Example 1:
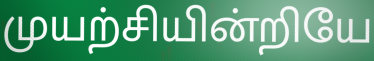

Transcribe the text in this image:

முயற்சியின்றியே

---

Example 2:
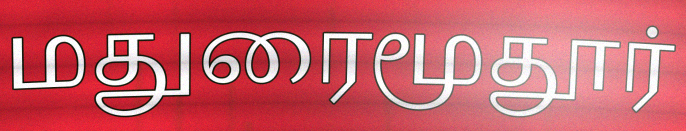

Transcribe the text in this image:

மதுரைமூதூர்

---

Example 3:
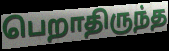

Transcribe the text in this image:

பெறாதிருந்த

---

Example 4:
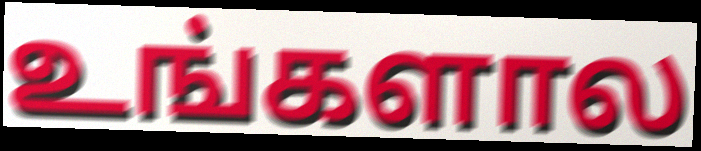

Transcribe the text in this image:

உங்களால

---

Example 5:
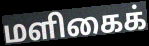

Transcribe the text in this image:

மளிகைக்